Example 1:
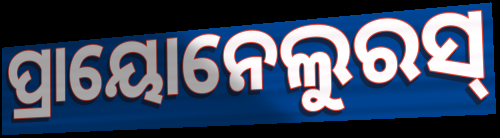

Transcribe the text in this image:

ପ୍ରାୟୋନେଲୁରସ୍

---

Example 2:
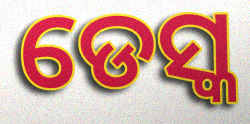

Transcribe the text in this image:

ଡେସ୍କ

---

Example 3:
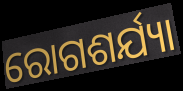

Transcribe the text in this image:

ରୋଗଶର୍ଯ୍ୟା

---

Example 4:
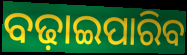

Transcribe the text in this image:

ବଢ଼ାଇପାରିବ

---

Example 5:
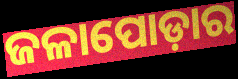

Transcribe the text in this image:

ଜଳାପୋଡ଼ାର